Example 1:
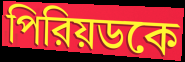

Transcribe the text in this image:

পিরিয়ডকে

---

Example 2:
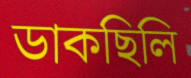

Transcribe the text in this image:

ডাকছিলি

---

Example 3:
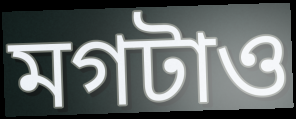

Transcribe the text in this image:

মগটাও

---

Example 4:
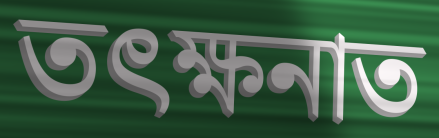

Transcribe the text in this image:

তৎক্ষনাত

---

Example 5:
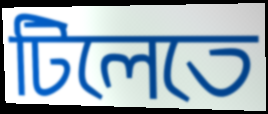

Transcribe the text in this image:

টিলেতে